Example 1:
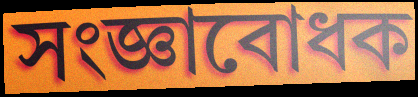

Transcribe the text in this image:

সংজ্ঞাবোধক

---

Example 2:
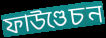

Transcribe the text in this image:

ফাউণ্ডেচন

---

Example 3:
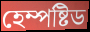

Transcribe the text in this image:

হেম্পষ্টিড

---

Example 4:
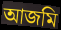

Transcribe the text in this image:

আজমি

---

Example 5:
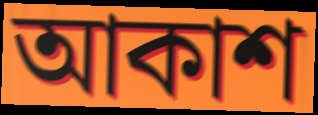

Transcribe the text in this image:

আকাশ